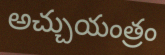
అచ్చుయంత్రం